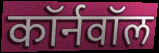
कॉर्नवॉल